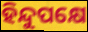
ହିନ୍ଦୁପକ୍ଷେ